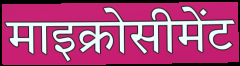
माइक्रोसीमेंट